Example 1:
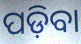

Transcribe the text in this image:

ପଡ଼ିବା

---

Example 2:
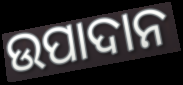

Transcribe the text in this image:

ଉପାଦାନ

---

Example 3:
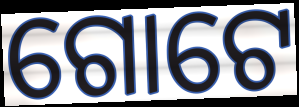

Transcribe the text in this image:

ଗୋଟେ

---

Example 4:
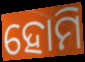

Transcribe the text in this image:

ହୋମି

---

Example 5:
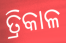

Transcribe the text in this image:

ତ୍ରିକାଳ